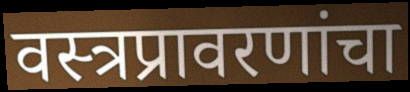
वस्त्रप्रावरणांचा